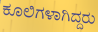
ಕೂಲಿಗಳಾಗಿದ್ದರು